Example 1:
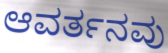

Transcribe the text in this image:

ಆವರ್ತನವು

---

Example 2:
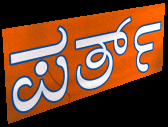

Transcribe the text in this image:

ಪರ್ತ್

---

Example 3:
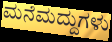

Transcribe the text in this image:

ಮನೆಮದ್ದುಗಳು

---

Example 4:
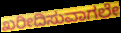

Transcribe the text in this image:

ಖರೀದಿಸುವಾಗಲೇ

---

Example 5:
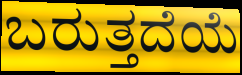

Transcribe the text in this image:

ಬರುತ್ತದೆಯೆ